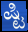
ಷ್ಟಿ